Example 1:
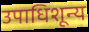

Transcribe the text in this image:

उपाधिशून्य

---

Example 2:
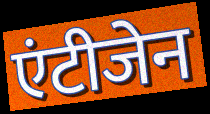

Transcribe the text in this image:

एंटीजेन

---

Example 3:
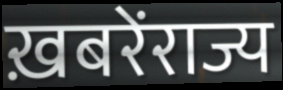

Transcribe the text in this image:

ख़बरेंराज्य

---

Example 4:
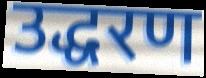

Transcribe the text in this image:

उद्धरण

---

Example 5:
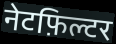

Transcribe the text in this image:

नेटफ़िल्टर